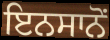
ਇਨਸਾਨੋਂ